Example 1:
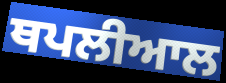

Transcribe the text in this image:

ਥਪਲੀਆਲ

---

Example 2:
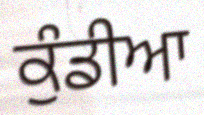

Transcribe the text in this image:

ਕੁੰਡੀਆ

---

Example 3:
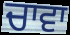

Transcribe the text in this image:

ਚਾਵਾ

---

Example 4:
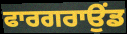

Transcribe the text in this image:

ਫਾਰਗਰਾਉਂਡ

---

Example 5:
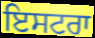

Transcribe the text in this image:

ਇਸਟਰਾ